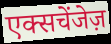
एक्सचेंजेज़